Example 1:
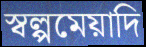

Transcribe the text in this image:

স্বল্পমেয়াদি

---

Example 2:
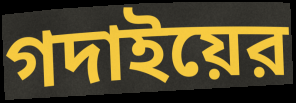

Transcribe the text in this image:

গদাইয়ের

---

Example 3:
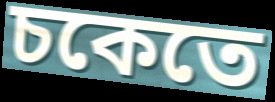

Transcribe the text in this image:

চকেতে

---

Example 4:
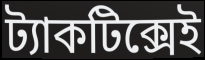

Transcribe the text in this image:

ট্যাকটিক্সেই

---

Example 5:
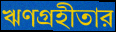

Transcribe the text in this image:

ঋণগ্রহীতার